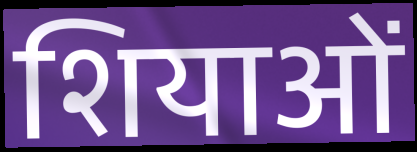
शियाओं